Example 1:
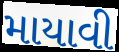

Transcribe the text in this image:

માયાવી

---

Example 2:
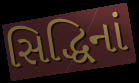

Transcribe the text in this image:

સિદ્ધિનાં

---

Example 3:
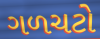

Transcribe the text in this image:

ગળચટો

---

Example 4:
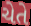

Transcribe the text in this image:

ચેતે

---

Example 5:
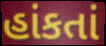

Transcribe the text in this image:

હાંકતાં